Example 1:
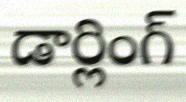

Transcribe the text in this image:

డార్లింగ్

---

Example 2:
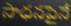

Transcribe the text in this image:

సాధనపైనే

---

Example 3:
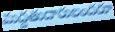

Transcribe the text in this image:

మద్దతుదారులందరూ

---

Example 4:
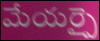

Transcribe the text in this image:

మేయర్పై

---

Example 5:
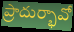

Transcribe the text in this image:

ప్రాదుర్భావో